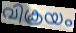
വിക്രയം